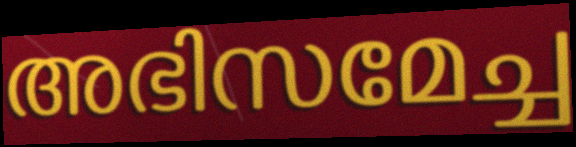
അഭിസമേച്ച